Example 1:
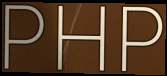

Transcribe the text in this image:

PHP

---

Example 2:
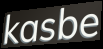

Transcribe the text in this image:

kasbe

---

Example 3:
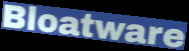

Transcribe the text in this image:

Bloatware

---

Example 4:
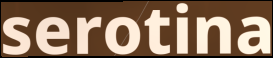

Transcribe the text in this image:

serotina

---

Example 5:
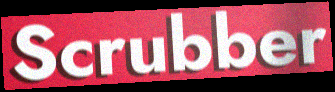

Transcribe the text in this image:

Scrubber